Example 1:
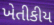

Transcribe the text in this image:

ખેતીકીય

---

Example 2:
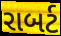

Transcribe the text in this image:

રાબર્ટ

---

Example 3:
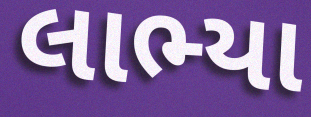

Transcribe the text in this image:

લાભ્યા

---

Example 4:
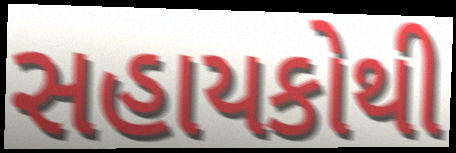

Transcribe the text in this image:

સહાયકોથી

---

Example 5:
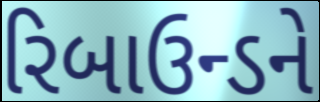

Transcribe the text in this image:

રિબાઉન્ડને